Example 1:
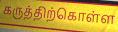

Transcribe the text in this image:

கருத்திற்கொள்ள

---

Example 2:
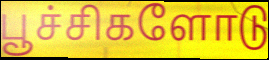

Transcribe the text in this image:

பூச்சிகளோடு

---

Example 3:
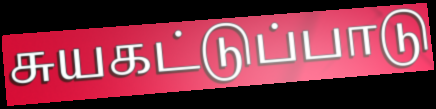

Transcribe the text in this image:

சுயகட்டுப்பாடு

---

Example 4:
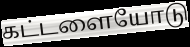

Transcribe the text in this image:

கட்டளையோடு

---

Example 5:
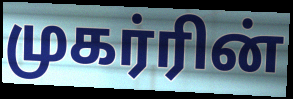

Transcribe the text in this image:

முகர்ரின்